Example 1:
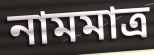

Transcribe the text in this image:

নামমাত্র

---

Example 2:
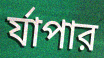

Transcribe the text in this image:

র্যাপার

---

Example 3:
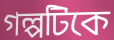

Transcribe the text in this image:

গল্পটিকে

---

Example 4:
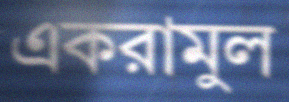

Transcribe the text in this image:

একরামুল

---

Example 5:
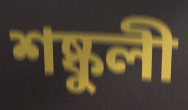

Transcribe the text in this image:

শষ্কুলী